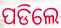
ପଡିଲେ